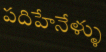
పదిహేనేళ్ళు